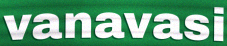
vanavasi